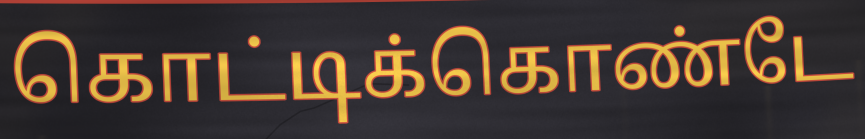
கொட்டிக்கொண்டே